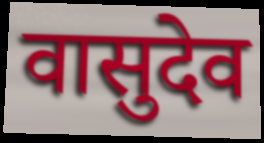
वासुदेव